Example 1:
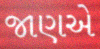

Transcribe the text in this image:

જાણએ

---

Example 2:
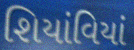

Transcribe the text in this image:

શિયાંવિયાં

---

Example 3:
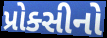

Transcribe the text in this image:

પ્રોક્સીનો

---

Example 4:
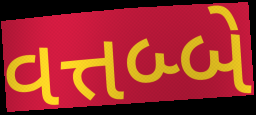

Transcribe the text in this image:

વત્તબ્બે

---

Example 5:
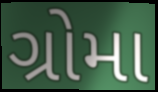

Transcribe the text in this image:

ગ્રોમા